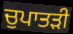
ਚੁਪਾਤੜੀ